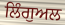
ਲਿੰਗੁਅਲ